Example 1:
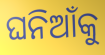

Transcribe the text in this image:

ଘନିଆଁକୁ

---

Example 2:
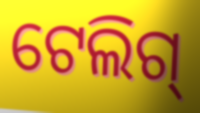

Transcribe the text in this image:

ଟେଲିଗ୍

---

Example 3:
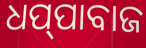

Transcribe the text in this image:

ଧପ୍‌ପାବାଜ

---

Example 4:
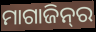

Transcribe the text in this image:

ମାଗାଜିନ୍‍ର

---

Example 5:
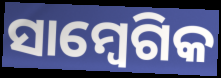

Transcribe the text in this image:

ସାମ୍ବେଗିକ